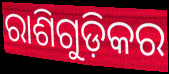
ରାଶିଗୁଡ଼ିକର